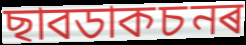
ছাবডাকচনৰ